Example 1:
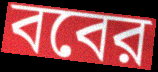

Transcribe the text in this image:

ববের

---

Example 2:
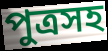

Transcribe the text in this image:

পুত্রসহ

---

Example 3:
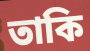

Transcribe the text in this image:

তাকি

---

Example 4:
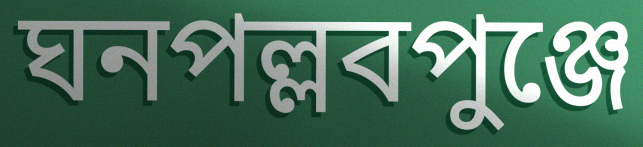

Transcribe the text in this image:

ঘনপল্লবপুঞ্জে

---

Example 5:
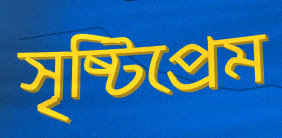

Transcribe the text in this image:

সৃষ্টিপ্রেম